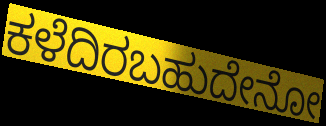
ಕಳೆದಿರಬಹುದೇನೋ